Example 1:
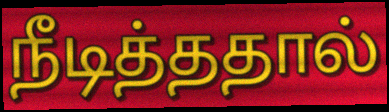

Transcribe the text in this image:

நீடித்ததால்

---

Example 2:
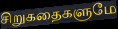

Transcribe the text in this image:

சிறுகதைகளுமே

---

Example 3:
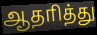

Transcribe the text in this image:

ஆதரித்து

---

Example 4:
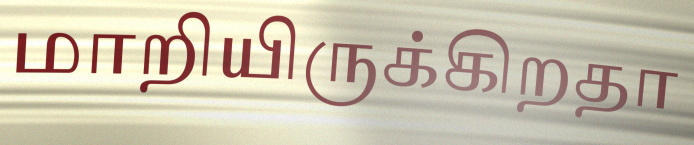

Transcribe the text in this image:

மாறியிருக்கிறதா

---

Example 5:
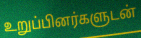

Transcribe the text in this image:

உறுப்பினர்களுடன்